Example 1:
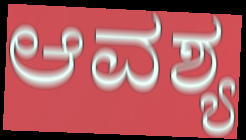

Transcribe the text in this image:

ಆವಶ್ಯ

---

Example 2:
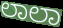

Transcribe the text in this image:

ಲಾಲಾ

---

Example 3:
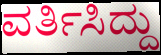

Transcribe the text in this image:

ವರ್ತಿಸಿದ್ದು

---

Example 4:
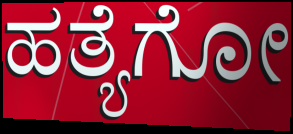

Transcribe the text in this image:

ಹತ್ಯೆಗೋ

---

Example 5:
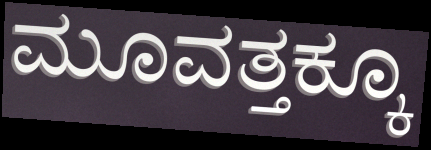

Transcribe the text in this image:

ಮೂವತ್ತಕ್ಕೂ